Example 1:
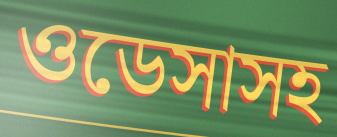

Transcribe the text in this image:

ওডেসাসহ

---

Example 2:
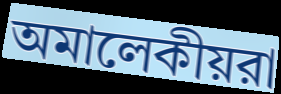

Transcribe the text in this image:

অমালেকীয়রা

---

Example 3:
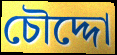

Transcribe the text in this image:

চৌদ্দো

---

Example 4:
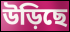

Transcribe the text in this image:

উড়িছে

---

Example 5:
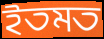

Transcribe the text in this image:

ইতমত